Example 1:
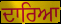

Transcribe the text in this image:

ਦਾਰਿਆ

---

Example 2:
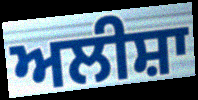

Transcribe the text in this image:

ਅਲੀਸ਼ਾ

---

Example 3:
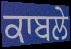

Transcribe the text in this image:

ਕਾਬਲੇ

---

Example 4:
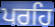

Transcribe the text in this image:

ਪਰਹਿ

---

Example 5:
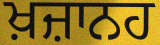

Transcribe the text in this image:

ਖ਼ਜ਼ਾਨਹ